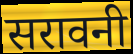
सरावनी